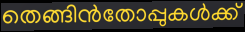
തെങ്ങിൻതോപ്പുകൾക്ക്